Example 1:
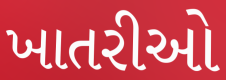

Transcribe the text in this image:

ખાતરીઓ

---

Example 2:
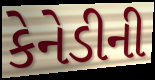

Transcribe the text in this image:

કેનેડીની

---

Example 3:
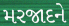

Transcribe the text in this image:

મરજાદને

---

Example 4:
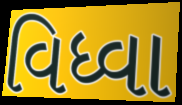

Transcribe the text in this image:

વિધ્વા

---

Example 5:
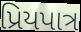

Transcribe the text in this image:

પ્રિયપાત્ર